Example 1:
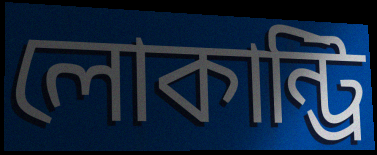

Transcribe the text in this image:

লোকান্ট্রি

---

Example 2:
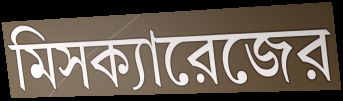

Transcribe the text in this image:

মিসক্যারেজের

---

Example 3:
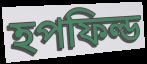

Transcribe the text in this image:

হপফিল্ড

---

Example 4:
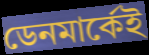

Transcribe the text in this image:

ডেনমার্কেই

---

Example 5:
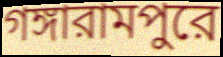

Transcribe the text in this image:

গঙ্গারামপুরে